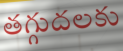
తగ్గుదలకు